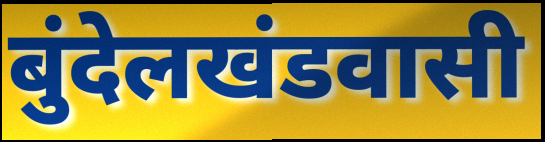
बुंदेलखंडवासी